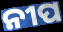
ନୀପ